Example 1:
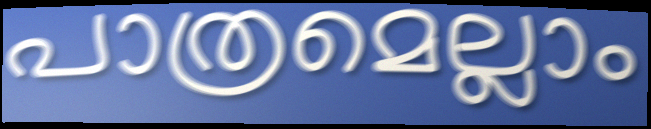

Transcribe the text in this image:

പാത്രമെല്ലാം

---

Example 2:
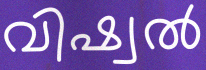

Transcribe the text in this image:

വിഷ്വൽ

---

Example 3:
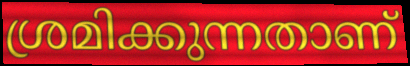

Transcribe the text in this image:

ശ്രമിക്കുന്നതാണ്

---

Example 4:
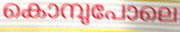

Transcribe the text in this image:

കൊമ്പുപോലെ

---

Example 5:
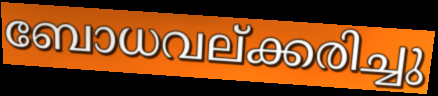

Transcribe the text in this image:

ബോധവല്ക്കരിച്ചു